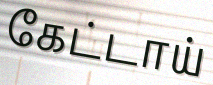
கேட்டாய்